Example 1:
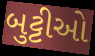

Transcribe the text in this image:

બુટ્ટીઓ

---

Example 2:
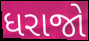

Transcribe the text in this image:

ધરાજો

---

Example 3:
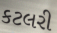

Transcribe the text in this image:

કટલરી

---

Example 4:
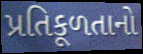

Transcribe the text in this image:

પ્રતિકૂળતાનો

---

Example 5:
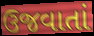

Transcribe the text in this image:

ઉજવાતાં